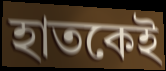
হাতকেই